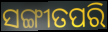
ସଙ୍ଗୀତପରି